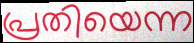
പ്രതിയെന്ന